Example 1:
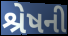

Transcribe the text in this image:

શ્રેષની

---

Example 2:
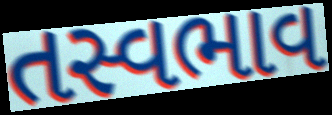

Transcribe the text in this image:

તસ્વભાવ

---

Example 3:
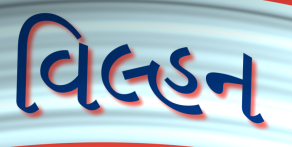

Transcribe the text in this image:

વિલ્હન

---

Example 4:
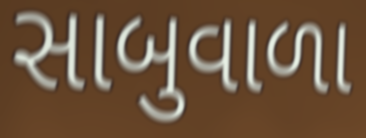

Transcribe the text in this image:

સાબુવાળા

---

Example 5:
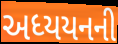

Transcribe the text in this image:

અધ્યયનની